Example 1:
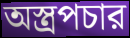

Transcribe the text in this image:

অস্ত্রপচার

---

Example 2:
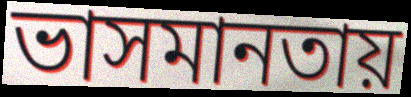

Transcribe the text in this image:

ভাসমানতায়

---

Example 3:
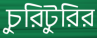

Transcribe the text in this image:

চুরিটুরির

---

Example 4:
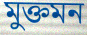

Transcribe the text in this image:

মুক্তমন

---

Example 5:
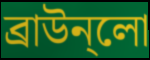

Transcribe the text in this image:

ব্রাউন্লো